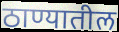
ठाण्यातील